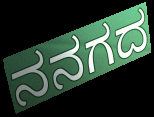
ನನಗದ